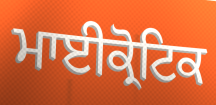
ਮਾਈਕ੍ਰੋਟਿਕ